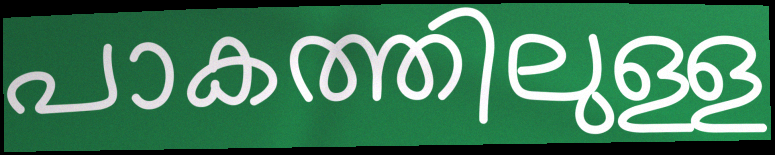
പാകത്തിലുള്ള